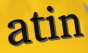
atin